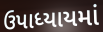
ઉપાધ્યાયમાં